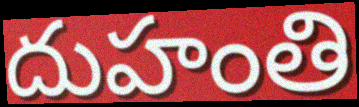
దుహంతి